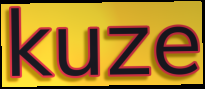
kuze